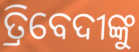
ତ୍ରିବେଦୀଙ୍କୁ